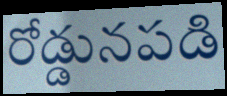
రోడ్డునపడి